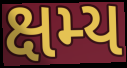
ક્ષમ્ય